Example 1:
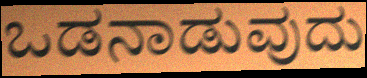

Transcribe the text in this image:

ಒಡನಾಡುವುದು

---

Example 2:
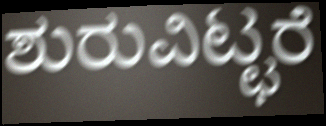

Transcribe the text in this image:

ಶುರುವಿಟ್ಟರೆ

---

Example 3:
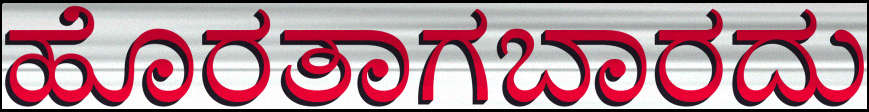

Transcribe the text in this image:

ಹೊರತಾಗಬಾರದು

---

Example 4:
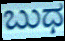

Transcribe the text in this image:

ಬುಧ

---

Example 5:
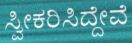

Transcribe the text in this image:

ಸ್ವೀಕರಿಸಿದ್ದೇವೆ